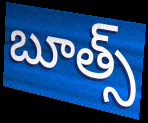
బూత్స్